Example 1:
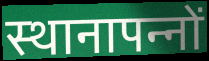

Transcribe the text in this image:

स्थानापन्नों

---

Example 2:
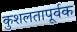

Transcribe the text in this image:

कुशलतापूर्वक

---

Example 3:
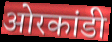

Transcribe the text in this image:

ओरकांडी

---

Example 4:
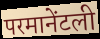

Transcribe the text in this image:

परमानेंटली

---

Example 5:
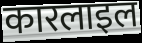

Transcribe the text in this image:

कारलाइल